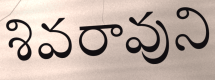
శివరావుని